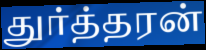
துர்த்தரன்